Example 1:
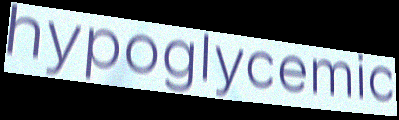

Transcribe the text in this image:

hypoglycemic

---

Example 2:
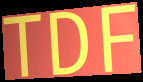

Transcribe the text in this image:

TDF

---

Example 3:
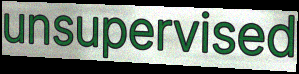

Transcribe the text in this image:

unsupervised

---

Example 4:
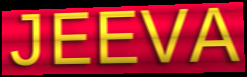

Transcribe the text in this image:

JEEVA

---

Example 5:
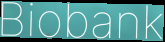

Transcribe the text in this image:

Biobank